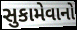
સુકામેવાનો